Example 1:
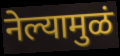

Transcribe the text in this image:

नेल्यामुळं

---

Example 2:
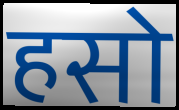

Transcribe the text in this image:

हसो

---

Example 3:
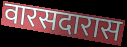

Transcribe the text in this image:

वारसदारास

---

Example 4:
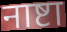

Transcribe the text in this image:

नाष्टा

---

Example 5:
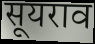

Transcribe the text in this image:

सूयराव